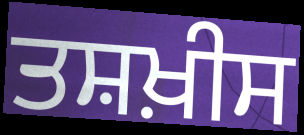
ਤਸ਼ਖ਼ੀਸ